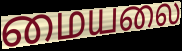
மையலை